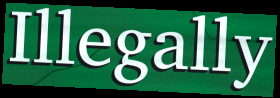
Illegally